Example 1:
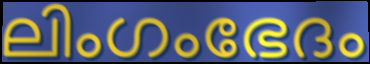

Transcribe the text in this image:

ലിംഗംഭേദം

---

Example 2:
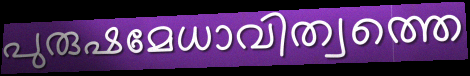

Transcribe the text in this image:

പുരുഷമേധാവിത്വത്തെ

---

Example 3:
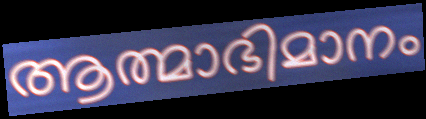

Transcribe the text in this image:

ആത്മാഭിമാനം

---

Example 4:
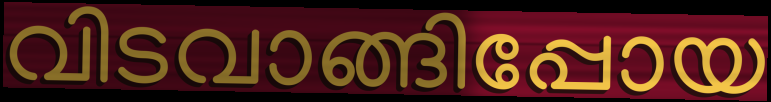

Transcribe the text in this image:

വിടവാങ്ങിപ്പോയ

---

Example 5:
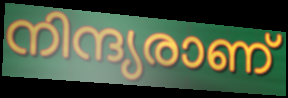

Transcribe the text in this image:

നിന്ദ്യരാണ്